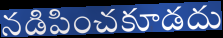
నడిపించకూడదు